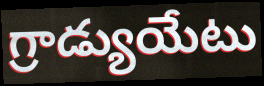
గ్రాడ్యుయేటు